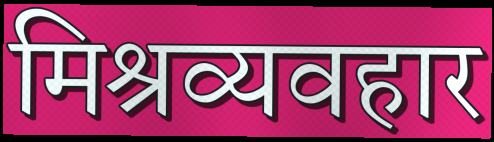
मिश्रव्यवहार